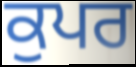
ਕੁਪਰ